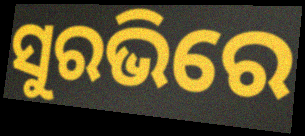
ସୁରଭିରେ